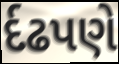
ર્દઢપણે